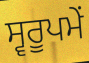
ਸ੍ਵਰੂਪਮੇਂ